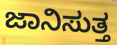
ಜಾನಿಸುತ್ತ